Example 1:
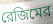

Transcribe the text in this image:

রেজিমের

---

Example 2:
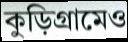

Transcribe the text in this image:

কুড়িগ্রামেও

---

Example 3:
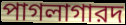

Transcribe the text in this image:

পাগলাগারদ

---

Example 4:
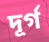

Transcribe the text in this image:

দূর্গ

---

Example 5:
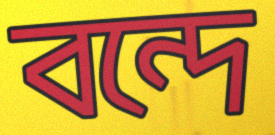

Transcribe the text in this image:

বন্দে